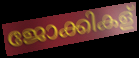
ജോക്കികള്